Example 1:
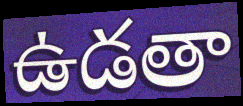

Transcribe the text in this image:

ఉడతా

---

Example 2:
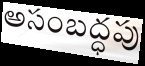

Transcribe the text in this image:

అసంబద్ధపు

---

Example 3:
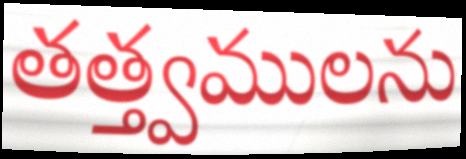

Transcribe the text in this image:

తత్త్వములను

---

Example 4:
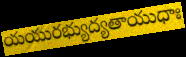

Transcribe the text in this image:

యయురభ్యుద్యతాయుధాః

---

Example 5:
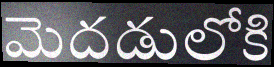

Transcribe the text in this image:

మెదడులోకి